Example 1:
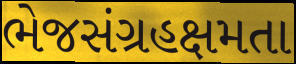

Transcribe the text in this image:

ભેજસંગ્રહક્ષમતા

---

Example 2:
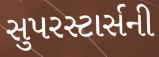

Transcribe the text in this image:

સુપરસ્ટાર્સની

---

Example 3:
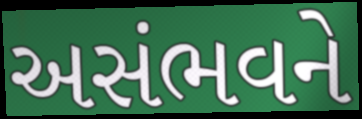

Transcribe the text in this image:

અસંભવને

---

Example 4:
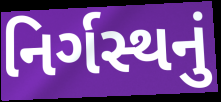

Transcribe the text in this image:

નિર્ગસ્થનું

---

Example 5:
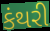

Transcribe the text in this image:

કંથરી